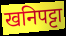
खनिपट्टा